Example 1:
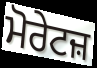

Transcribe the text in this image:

ਮੋਰੇਟਜ਼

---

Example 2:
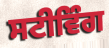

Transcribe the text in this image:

ਸਟੀਵਿੰਗ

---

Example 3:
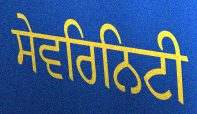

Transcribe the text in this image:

ਸੇਵਰਿਨਿਟੀ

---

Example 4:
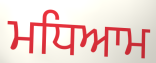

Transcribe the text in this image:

ਮਧਿਆਮ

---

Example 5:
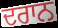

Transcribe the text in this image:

ਦਰਾਨ